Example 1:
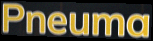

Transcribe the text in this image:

Pneuma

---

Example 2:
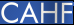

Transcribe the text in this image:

CAHF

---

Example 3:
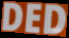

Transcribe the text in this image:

DED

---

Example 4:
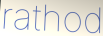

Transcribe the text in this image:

rathod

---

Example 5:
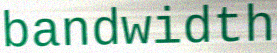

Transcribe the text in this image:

bandwidth